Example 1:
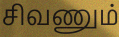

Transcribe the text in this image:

சிவணும்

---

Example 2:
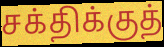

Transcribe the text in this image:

சக்திக்குத்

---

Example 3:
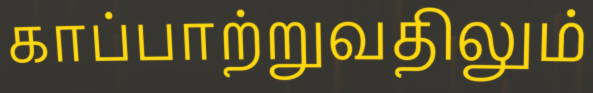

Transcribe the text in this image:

காப்பாற்றுவதிலும்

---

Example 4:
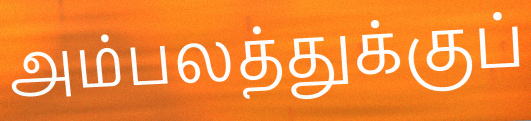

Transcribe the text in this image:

அம்பலத்துக்குப்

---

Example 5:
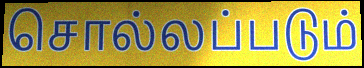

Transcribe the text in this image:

சொல்லப்படும்